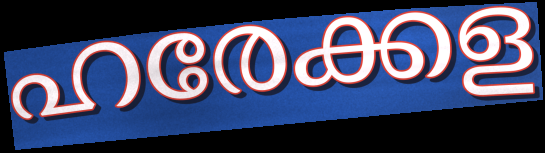
ഹരേക്കള